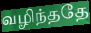
வழிந்ததே